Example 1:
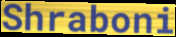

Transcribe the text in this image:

Shraboni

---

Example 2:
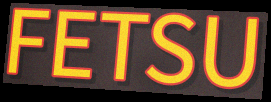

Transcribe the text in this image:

FETSU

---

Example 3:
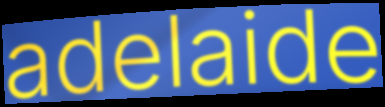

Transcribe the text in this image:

adelaide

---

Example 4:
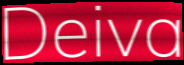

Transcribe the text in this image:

Deiva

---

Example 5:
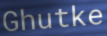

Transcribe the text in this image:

Ghutke